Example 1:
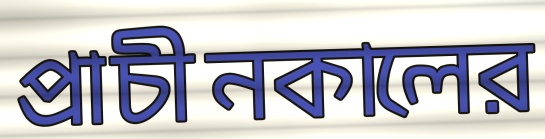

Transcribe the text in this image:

প্রাচীনকালের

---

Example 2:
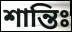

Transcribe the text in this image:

শান্তিঃ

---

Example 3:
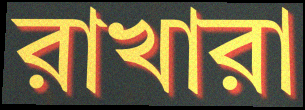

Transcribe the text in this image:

রাখারা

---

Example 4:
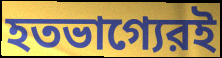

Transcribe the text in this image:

হতভাগ্যেরই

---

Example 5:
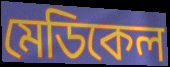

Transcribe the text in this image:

মেডিকেল